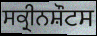
ਸਕ੍ਰੀਨਸ਼ੌਟਸ